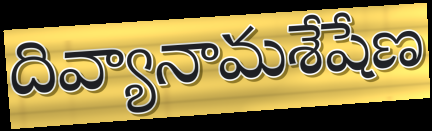
దివ్యానామశేషేణ